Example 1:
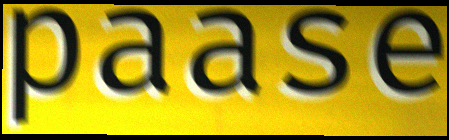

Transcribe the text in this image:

paase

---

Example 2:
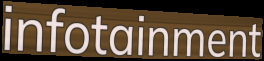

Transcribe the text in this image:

infotainment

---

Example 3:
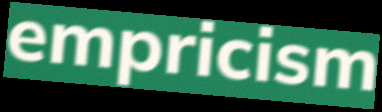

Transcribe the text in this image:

empricism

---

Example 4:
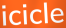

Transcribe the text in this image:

icicle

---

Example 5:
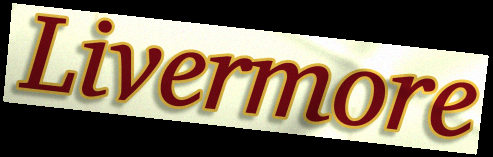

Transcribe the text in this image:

Livermore